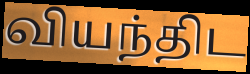
வியந்திட